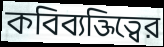
কবিব্যক্তিত্বের